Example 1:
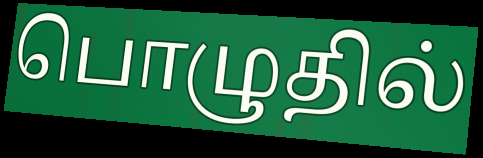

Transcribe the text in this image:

பொழுதில்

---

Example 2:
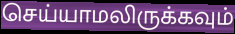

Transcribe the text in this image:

செய்யாமலிருக்கவும்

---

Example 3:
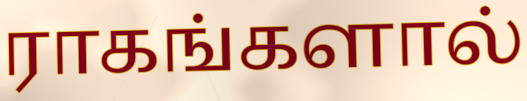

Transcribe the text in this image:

ராகங்களால்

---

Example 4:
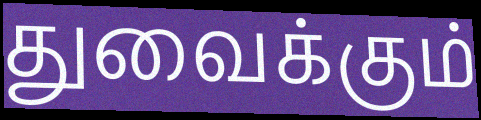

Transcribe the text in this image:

துவைக்கும்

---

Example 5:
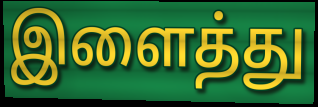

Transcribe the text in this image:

இளைத்து